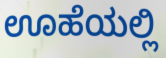
ಊಹೆಯಲ್ಲಿ